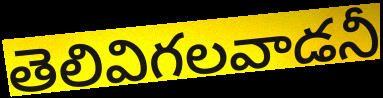
తెలివిగలవాడనీ